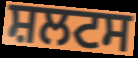
ਸ਼ਲਟਸ